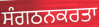
ਸੰਗਠਨਕਰਤਾ